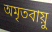
অমৃতবায়ু